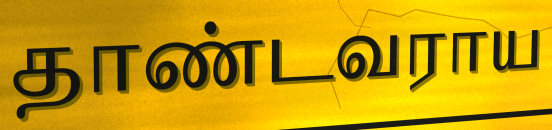
தாண்டவராய